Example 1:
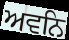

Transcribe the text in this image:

ਅਵਨਿ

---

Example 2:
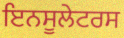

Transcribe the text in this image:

ਇਨਸੂਲੇਟਰਸ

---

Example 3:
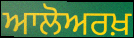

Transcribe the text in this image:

ਆਲੋਅਰਖ਼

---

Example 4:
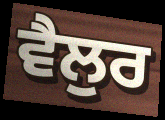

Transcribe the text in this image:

ਵੈਲੁਰ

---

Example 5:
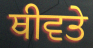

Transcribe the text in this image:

ਥੀਵਤੇ